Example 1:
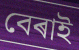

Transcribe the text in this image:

বেৰাই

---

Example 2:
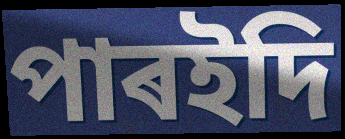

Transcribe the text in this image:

পাৰইদি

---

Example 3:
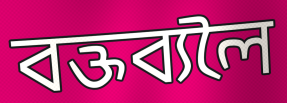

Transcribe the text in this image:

বক্তব্যলৈ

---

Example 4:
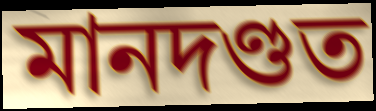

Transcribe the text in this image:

মানদণ্ডত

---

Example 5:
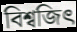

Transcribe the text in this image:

বিশ্বজিৎ